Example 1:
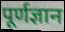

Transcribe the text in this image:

पूर्णज्ञान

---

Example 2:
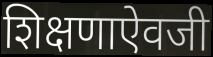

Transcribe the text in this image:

शिक्षणाऐवजी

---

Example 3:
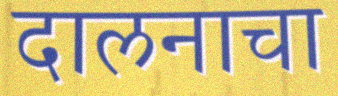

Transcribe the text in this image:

दालनाचा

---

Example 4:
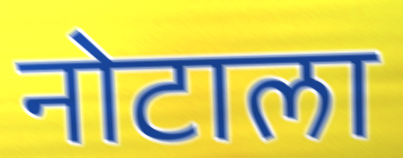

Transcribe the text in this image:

नोटाला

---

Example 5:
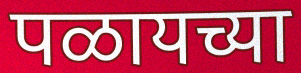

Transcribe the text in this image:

पळायच्या